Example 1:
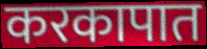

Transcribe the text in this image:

करकापात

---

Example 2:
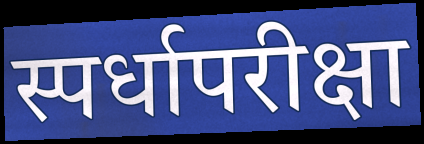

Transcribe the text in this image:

स्पर्धापरीक्षा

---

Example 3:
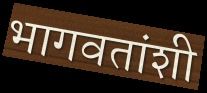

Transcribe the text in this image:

भागवतांशी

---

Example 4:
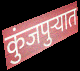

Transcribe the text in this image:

कुंजपुऱ्यात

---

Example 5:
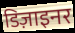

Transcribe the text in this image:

डिज़ाइनर